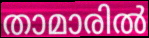
താമാരിൽ